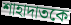
শাহাদাতকে